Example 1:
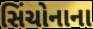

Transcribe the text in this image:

સિંચોનાના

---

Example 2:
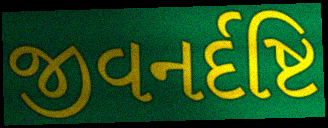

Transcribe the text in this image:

જીવનર્દષ્ટિ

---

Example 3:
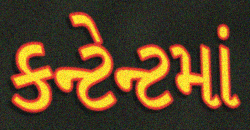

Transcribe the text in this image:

કન્ટેન્ટમાં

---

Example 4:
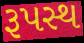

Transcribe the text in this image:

રૂપસ્થ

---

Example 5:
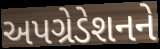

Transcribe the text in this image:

અપગ્રેડેશનને